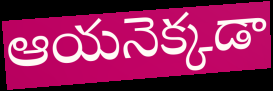
ఆయనెక్కడా